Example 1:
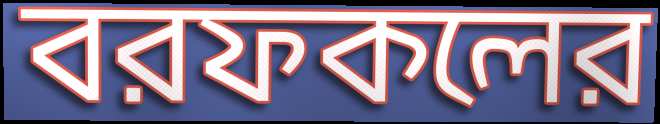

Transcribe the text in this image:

বরফকলের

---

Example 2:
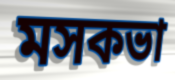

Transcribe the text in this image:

মসকভা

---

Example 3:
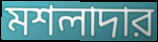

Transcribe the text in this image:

মশলাদার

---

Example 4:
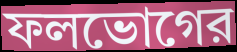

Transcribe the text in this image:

ফলভোগের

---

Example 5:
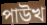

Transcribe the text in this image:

পাউখ